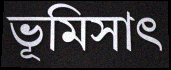
ভূমিসাৎ